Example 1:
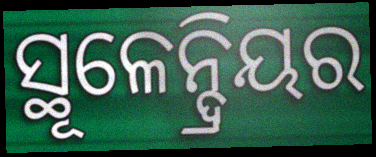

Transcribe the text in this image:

ସ୍ଥୂଳେନ୍ଦ୍ରିୟର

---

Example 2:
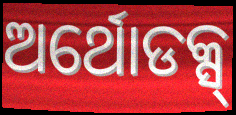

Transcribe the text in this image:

ଅର୍ଥୋଡକ୍ସ୍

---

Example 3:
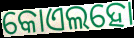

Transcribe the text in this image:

କୋଏଲହୋ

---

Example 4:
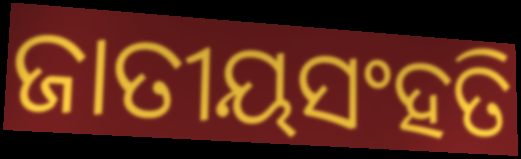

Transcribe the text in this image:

ଜାତୀୟସଂହତି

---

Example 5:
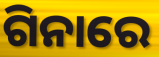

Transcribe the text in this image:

ଗିନାରେ